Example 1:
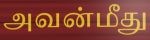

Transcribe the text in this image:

அவன்மீது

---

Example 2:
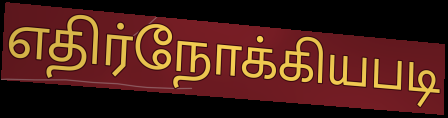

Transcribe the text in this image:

எதிர்நோக்கியபடி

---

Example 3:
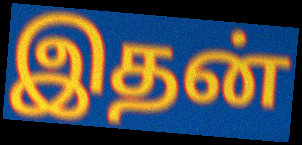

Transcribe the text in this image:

இதன்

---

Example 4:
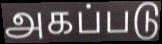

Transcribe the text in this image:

அகப்படு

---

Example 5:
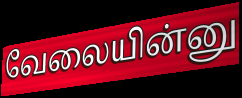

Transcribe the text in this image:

வேலையின்னு